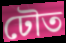
ঢৌত